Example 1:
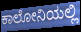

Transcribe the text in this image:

ಕಾಲೋನಿಯಲ್ಲಿ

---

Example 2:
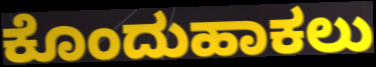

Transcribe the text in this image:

ಕೊಂದುಹಾಕಲು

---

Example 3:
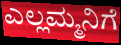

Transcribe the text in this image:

ಎಲ್ಲಮ್ಮನಿಗೆ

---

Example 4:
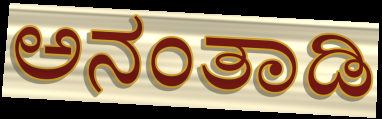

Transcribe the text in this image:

ಅನಂತಾಡಿ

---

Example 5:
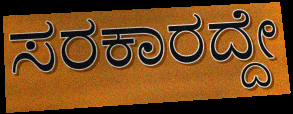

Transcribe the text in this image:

ಸರಕಾರದ್ದೇ